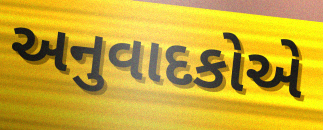
અનુવાદકોએ